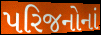
પરિજનોનાં